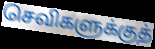
செவிகளுக்குத்